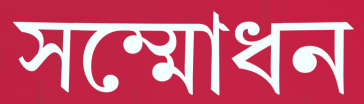
সম্মোধন